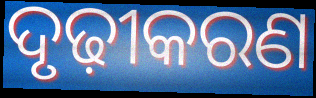
ଦୃଢ଼ୀକରଣ